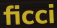
ficci